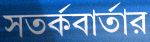
সতর্কবার্তার